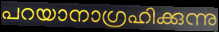
പറയാനാഗ്രഹിക്കുന്നു